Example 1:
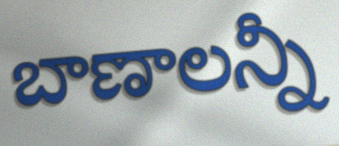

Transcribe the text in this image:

బాణాలన్నీ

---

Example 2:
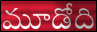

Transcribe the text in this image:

మూడోది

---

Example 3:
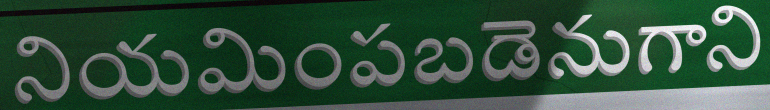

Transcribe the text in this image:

నియమింపబడెనుగాని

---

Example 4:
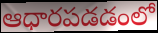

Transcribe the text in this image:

ఆధారపడడంలో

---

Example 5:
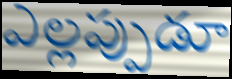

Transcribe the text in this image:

ఎల్లప్పుడూ